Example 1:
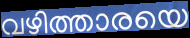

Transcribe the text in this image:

വഴിത്താരയെ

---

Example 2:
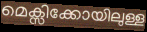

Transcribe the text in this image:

മെക്സിക്കോയിലുള്ള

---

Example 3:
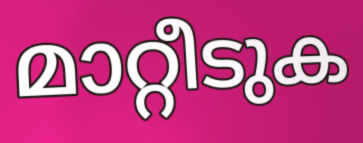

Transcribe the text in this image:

മാറ്റീടുക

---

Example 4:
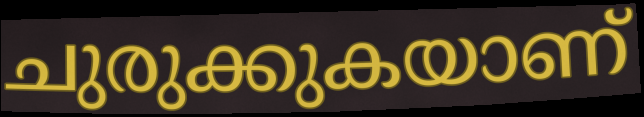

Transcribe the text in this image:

ചുരുക്കുകയാണ്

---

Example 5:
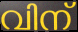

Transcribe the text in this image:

വിന്